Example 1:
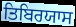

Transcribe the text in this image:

ਤਿਬਿਰਯਾਸ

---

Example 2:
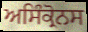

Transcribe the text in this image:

ਅਸਿੰਕ੍ਰੋਨਸ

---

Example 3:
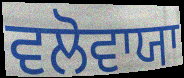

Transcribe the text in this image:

ਵਲੋਵਾਯਾ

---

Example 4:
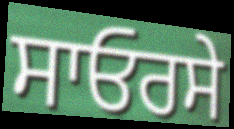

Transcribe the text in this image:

ਸਾਓਰਸੇ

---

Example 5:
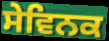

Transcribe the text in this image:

ਸੇਵਿਨਕ